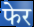
फेर